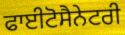
ਫਾਈਟੋਸੈਨੇਟਰੀ